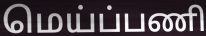
மெய்ப்பணி